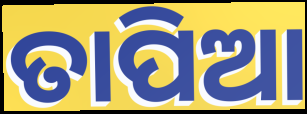
ତାପିଆ